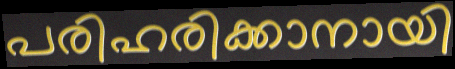
പരിഹരിക്കാനായി